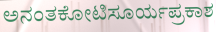
ಅನಂತಕೋಟಿಸೂರ್ಯಪ್ರಕಾಶ